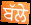
ਬੱਲੇ